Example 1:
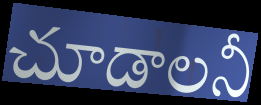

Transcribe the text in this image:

చూడాలనీ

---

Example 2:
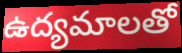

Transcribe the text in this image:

ఉద్యమాలతో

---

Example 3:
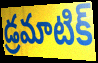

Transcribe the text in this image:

డ్రమాటిక్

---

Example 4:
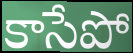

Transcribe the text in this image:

కాసేపో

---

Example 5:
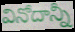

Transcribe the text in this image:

వినోదాన్నీ